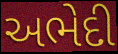
અભેદી